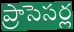
ప్రాసెసర్ల